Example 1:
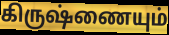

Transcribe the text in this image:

கிருஷ்ணையும்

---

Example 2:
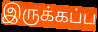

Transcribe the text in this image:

இருக்கப்ப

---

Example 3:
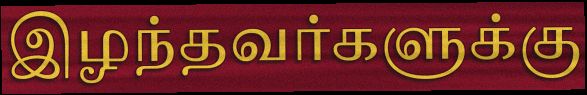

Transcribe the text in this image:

இழந்தவர்களுக்கு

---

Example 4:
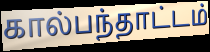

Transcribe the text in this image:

கால்பந்தாட்டம்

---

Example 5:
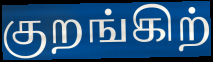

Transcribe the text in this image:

குறங்கிற்